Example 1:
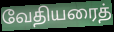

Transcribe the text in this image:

வேதியரைத்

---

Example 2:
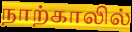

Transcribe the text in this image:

நாற்காலில்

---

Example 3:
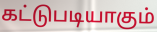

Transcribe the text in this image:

கட்டுபடியாகும்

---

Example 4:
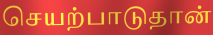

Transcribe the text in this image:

செயற்பாடுதான்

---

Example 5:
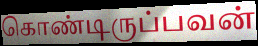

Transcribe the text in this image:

கொண்டிருப்பவன்